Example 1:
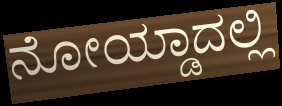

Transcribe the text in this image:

ನೋಯ್ಡಾದಲ್ಲಿ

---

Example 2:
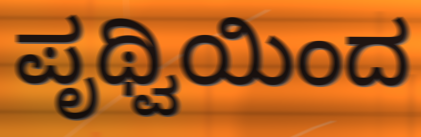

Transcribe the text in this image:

ಪೃಥ್ವಿಯಿಂದ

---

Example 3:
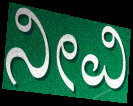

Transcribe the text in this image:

ನೀವಿ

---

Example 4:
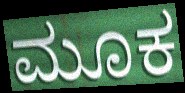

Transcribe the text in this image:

ಮೂಕ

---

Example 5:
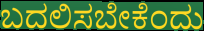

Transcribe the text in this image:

ಬದಲಿಸಬೇಕೆಂದು